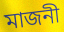
মাজনী